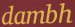
dambh